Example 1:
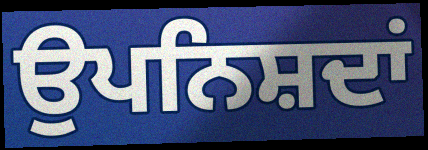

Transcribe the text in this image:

ਉਪਨਿਸ਼ਦਾਂ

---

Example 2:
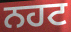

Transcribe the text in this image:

ਨਹਟ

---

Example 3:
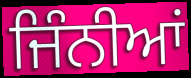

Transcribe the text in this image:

ਜਿੰਨੀਆਂ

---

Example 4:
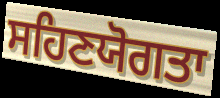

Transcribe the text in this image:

ਸਹਿਣਯੋਗਤਾ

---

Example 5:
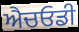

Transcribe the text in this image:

ਐਚਓਡੀ